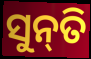
ସୁନ୍‌ତି